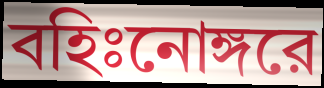
বহিঃনোঙ্গরে